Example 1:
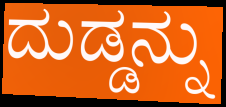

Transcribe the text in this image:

ದುಡ್ಡನ್ನು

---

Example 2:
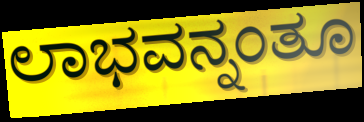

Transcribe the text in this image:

ಲಾಭವನ್ನಂತೂ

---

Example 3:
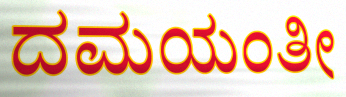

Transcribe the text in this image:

ದಮಯಂತೀ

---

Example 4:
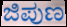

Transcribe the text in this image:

ಜಿಪುಣ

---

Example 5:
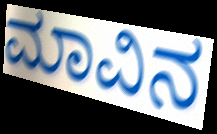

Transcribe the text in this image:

ಮಾವಿನ